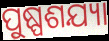
ପୁଷ୍ପଶଯ୍ୟା